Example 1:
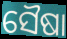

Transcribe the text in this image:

ସୈଷା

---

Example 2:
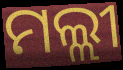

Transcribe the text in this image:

ମଲ୍ଲୀ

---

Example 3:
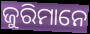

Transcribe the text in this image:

ଜୁରିମାନେ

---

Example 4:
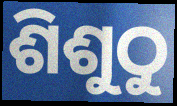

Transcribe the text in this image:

ଶିଶୁଠୁ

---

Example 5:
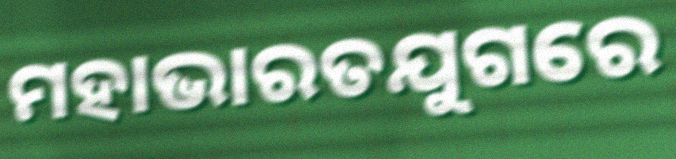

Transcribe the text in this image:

ମହାଭାରତଯୁଗରେ